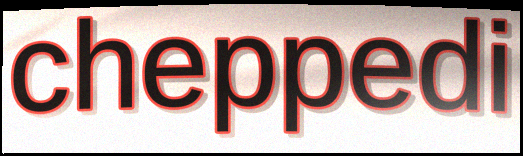
cheppedi